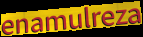
enamulreza